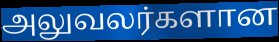
அலுவலர்களான